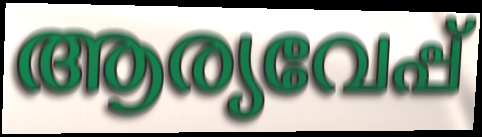
ആര്യവേപ്പ്